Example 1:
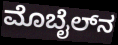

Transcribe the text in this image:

ಮೊಬೈಲ್‌ನ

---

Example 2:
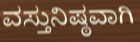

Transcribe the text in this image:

ವಸ್ತುನಿಷ್ಠವಾಗಿ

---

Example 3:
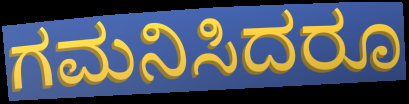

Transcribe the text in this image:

ಗಮನಿಸಿದರೂ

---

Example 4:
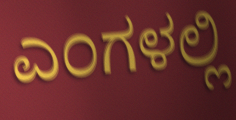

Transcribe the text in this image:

ಎಂಗಳಲ್ಲಿ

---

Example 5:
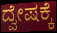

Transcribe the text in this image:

ದ್ವೇಷಕ್ಕೆ